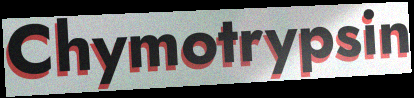
Chymotrypsin